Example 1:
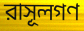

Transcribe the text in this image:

রাসূলগণ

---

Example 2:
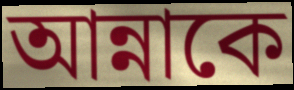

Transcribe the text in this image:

আন্নাকে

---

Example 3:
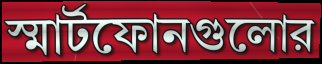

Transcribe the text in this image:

স্মার্টফোনগুলোর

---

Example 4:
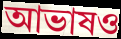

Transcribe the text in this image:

আভাষও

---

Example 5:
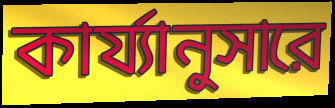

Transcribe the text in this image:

কার্য্যানুসারে